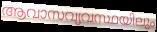
ആവാസവ്യവസ്ഥയിലും